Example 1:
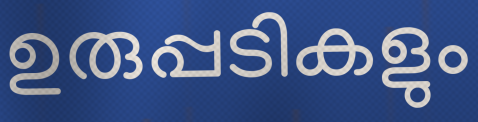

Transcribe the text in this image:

ഉരുപ്പടികളും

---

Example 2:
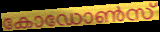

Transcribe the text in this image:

കോഡോൺസ്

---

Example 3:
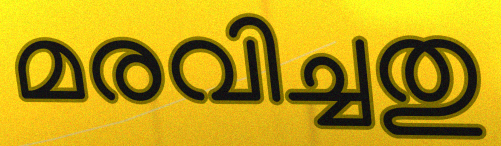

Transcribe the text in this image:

മരവിച്ചതു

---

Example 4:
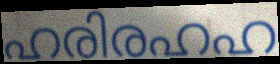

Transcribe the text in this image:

ഹരിരഹഹ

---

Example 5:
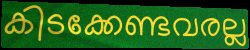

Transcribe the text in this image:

കിടക്കേണ്ടവരല്ല